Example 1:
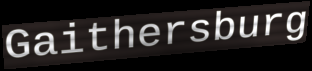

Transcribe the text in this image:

Gaithersburg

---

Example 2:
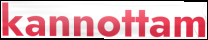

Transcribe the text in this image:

kannottam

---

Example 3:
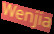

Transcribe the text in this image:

Wenjia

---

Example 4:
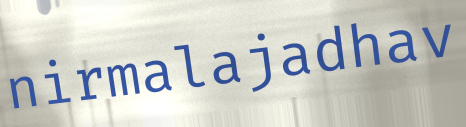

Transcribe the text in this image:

nirmalajadhav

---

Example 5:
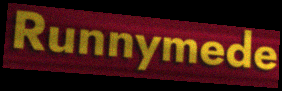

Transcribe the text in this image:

Runnymede